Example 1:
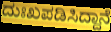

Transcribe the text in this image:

ದುಃಖಪಡಿಸಿದ್ದಾನೆ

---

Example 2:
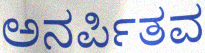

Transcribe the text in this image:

ಅನರ್ಪಿತವ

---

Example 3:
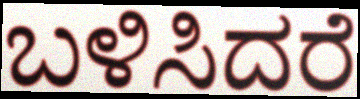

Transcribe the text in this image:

ಬಳಿಸಿದರೆ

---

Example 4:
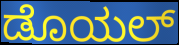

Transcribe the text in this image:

ಡೊಯಲ್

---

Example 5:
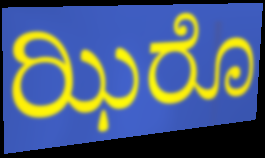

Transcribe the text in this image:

ಝಿರೊ